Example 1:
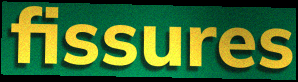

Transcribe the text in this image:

fissures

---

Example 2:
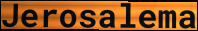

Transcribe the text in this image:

Jerosalema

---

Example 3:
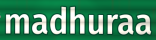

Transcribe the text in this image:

madhuraa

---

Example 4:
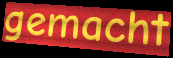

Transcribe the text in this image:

gemacht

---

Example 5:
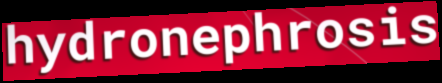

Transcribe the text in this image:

hydronephrosis